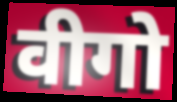
वीगो